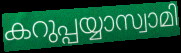
കറുപ്പയ്യാസ്വാമി